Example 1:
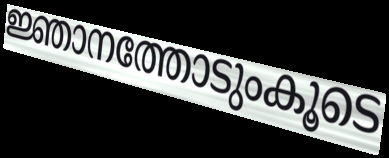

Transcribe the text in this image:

ജ്ഞാനത്തോടുംകൂടെ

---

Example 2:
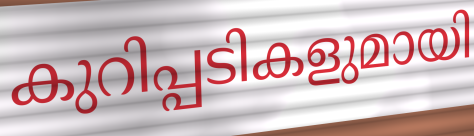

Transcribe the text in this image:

കുറിപ്പടികളുമായി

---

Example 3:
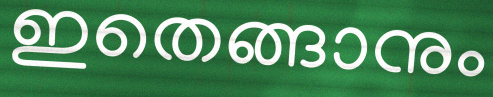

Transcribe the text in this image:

ഇതെങ്ങാനും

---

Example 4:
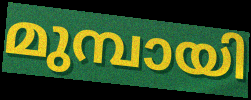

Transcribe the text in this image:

മുമ്പായി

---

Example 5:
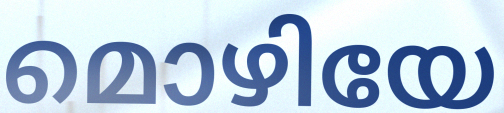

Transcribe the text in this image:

മൊഴിയേ